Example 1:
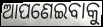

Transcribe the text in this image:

ଆପଣେଇବାକୁ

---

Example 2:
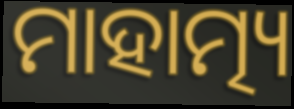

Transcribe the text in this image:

ମାହାତ୍ମ୍ୟ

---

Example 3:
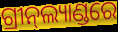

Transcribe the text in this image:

ଗ୍ରୀନ୍‍ଲ୍ୟାଣ୍ଡରେ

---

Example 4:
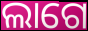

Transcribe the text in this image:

ଲାଗେ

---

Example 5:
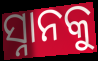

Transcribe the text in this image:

ସ୍ନାନକୁ